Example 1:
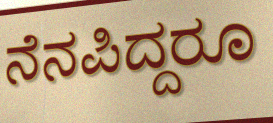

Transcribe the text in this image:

ನೆನಪಿದ್ದರೂ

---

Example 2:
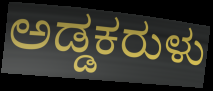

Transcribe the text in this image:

ಅಡ್ಡಕರುಳು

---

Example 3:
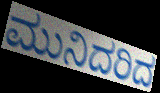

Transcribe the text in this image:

ಮುನಿದರಿದ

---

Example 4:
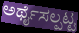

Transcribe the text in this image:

ಅರ್ಥೈಸಲ್ಪಟ್ಟ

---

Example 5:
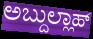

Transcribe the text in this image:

ಅಬ್ದುಲ್ಲಾಹ್